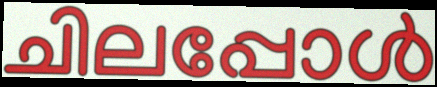
ചിലപ്പോൾ